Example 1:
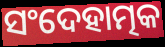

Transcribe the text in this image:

ସଂଦେହାତ୍ମକ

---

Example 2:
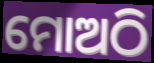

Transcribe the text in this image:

ମୋଅଠି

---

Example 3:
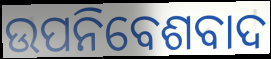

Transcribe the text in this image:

ଉପନିବେଶବାଦ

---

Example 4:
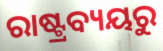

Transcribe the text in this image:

ରାଷ୍ଟ୍ରବ୍ୟୟରୁ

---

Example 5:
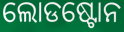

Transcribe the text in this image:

ଲୋଡଷ୍ଟୋନ